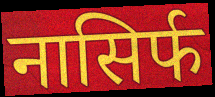
नासिर्फ